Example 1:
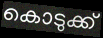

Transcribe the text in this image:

കൊടുക്ക്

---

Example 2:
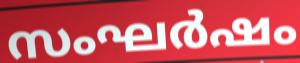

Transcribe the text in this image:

സംഘർഷം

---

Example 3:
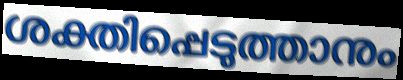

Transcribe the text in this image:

ശക്തിപ്പെടുത്താനും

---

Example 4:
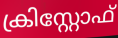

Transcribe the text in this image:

ക്രിസ്റ്റോഫ്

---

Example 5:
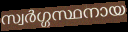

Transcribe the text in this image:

സ്വർഗ്ഗസ്ഥനായ